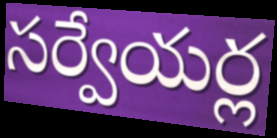
సర్వేయర్ల